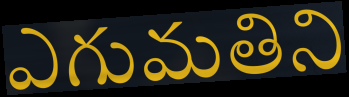
ఎగుమతిని